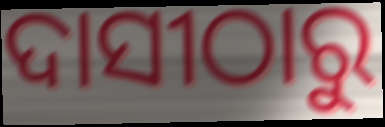
ଦାସୀଠାରୁ